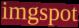
imgspot